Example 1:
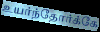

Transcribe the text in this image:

உயர்ந்தோர்க்கே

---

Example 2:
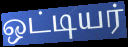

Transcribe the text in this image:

ஒட்டியர்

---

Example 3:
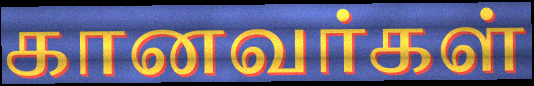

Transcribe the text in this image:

கானவர்கள்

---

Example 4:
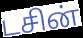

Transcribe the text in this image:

டசின்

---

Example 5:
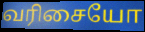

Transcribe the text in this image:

வரிசையோ